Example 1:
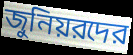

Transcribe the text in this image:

জুনিয়রদের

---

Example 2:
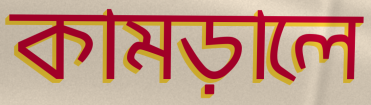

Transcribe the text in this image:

কামড়ালে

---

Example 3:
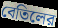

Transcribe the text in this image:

বেতিলের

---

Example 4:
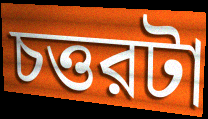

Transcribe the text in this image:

চত্তরটা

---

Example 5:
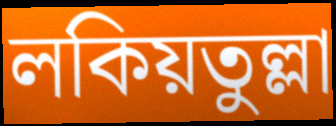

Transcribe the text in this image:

লকিয়তুল্লা